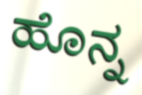
ಹೊನ್ನ